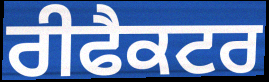
ਰੀਫੈਕਟਰ